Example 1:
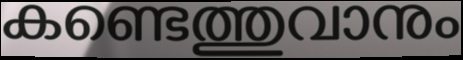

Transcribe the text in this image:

കണ്ടെത്തുവാനും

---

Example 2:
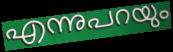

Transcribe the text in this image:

എന്നുപറയും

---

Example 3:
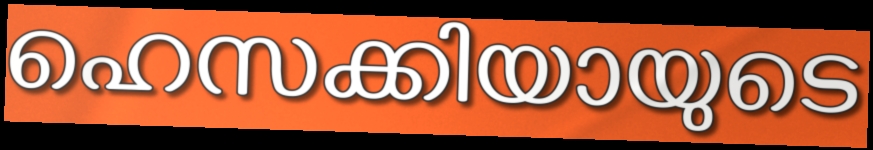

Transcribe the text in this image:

ഹെസക്കിയായുടെ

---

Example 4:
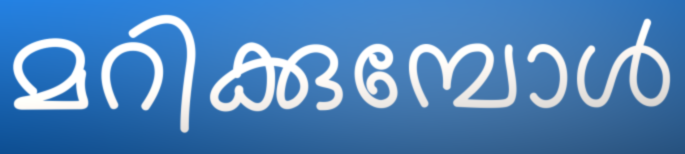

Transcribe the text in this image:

മറിക്കുമ്പോൾ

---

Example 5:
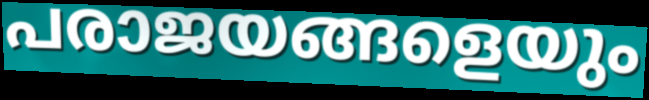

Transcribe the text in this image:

പരാജയങ്ങളെയും